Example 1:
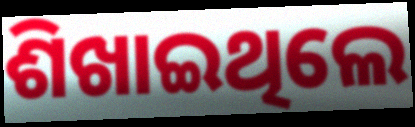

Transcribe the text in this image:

ଶିଖାଇଥିଲେ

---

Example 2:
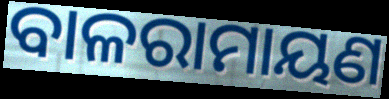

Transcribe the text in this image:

ବାଳରାମାୟଣ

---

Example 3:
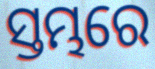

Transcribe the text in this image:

ସ୍ତମ୍ଭରେ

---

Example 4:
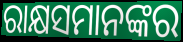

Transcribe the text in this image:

ରାକ୍ଷସମାନଙ୍କର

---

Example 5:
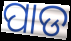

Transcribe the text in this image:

ପାଡ